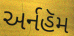
અર્નહૅમ